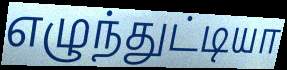
எழுந்துட்டியா